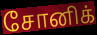
சோனிக்